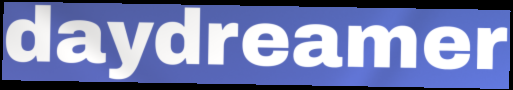
daydreamer